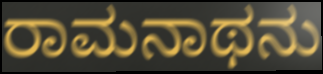
ರಾಮನಾಥನು